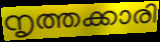
നൃത്തക്കാരി